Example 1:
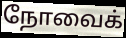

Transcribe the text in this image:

நோவைக்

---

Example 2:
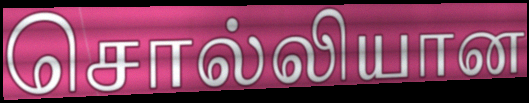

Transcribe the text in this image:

சொல்லியான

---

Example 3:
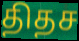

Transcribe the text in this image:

திதச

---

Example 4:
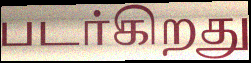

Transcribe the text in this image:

படர்கிறது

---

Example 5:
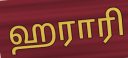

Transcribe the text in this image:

ஹராரி